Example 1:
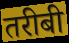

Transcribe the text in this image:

तरीबी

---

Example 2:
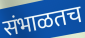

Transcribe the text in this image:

संभाळतच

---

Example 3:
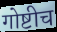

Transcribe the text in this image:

गोष्टीच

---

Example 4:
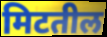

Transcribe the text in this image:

मिटतील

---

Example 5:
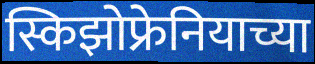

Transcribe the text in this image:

स्किझोफ्रेनियाच्या